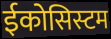
ईकोसिस्‍टम